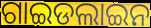
ଗାଇଡଲାଇନ